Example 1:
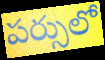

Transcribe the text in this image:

పర్సులో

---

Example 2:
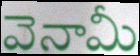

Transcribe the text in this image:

వెనామీ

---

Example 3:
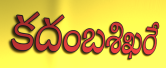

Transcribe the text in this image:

కదంబశిఖరే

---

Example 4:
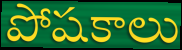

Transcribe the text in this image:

పోషకాలు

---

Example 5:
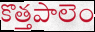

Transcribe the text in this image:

కొత్తపాలెం